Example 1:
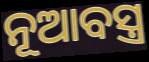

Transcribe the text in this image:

ନୂଆବସ୍ତ୍ର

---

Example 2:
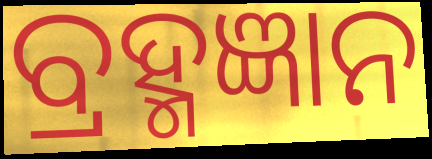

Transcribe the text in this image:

ବ୍ରହ୍ମଜ୍ଞାନ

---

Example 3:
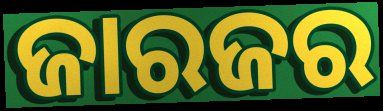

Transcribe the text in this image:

ଜାରଜର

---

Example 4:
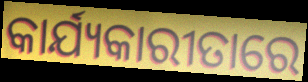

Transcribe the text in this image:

କାର୍ଯ୍ୟକାରୀତାରେ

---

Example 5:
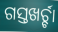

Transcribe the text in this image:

ଗସ୍ତଖର୍ଚ୍ଚା